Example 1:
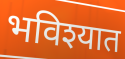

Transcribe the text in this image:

भविश्यात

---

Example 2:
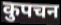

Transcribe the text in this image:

कुपचन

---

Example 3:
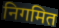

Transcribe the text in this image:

निगमित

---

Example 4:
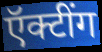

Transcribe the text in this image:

ऍक्टींग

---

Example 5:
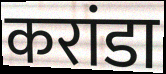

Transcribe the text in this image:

करांडा